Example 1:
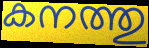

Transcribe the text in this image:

കനത്തു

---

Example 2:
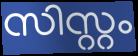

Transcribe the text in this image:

സിസ്റ്റം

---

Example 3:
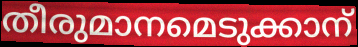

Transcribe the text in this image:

തീരുമാനമെടുക്കാന്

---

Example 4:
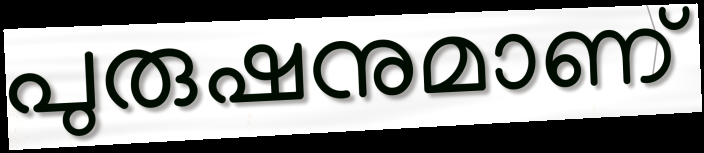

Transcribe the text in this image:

പുരുഷനുമാണ്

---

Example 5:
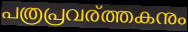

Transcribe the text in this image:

പത്രപ്രവര്ത്തകനും